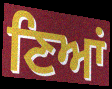
ਣਿਆਂ